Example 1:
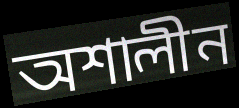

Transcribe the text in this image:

অশালীন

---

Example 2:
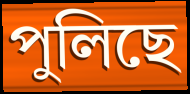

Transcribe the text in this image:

পুলিছে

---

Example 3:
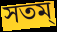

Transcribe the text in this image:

সতম্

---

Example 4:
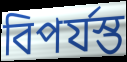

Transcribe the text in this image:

বিপৰ্যস্ত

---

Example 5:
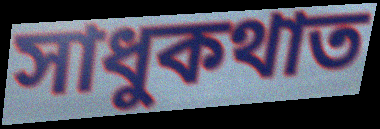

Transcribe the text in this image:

সাধুকথাত